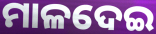
ମାଳଦେଇ